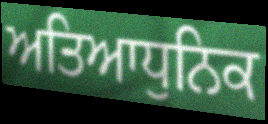
ਅਤਿਆਧੁਨਿਕ